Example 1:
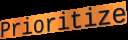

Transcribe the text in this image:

Prioritize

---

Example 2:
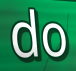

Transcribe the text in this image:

do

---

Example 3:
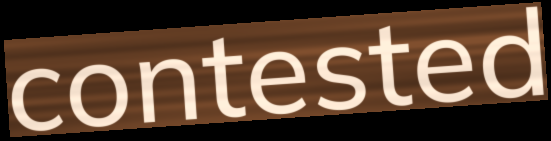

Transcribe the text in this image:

contested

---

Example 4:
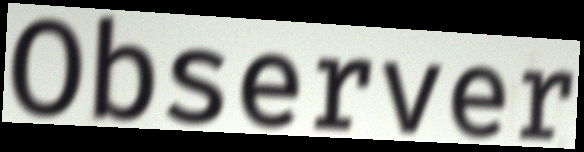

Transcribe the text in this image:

Observer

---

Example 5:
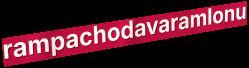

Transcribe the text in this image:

rampachodavaramlonu